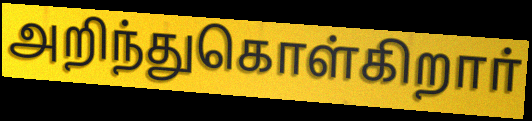
அறிந்துகொள்கிறார்